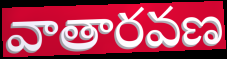
వాతారవణ